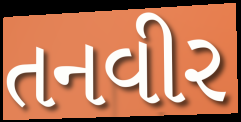
તનવીર